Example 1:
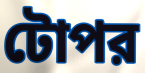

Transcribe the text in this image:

টোপর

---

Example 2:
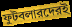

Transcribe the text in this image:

ফুটবলারদেরই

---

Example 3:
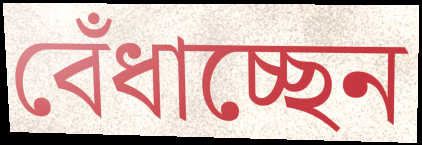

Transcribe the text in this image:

বেঁধাচ্ছেন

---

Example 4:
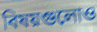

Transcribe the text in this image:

বিষয়গুলোও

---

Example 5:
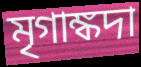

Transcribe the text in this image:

মৃগাঙ্কদা